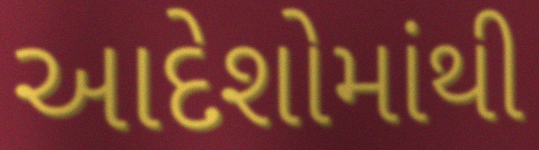
આદેશોમાંથી